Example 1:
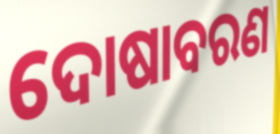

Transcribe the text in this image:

ଦୋଷାବରଣ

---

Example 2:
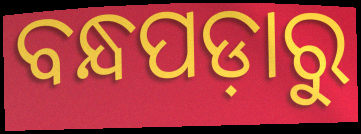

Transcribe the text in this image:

ବନ୍ଧପଡ଼ାରୁ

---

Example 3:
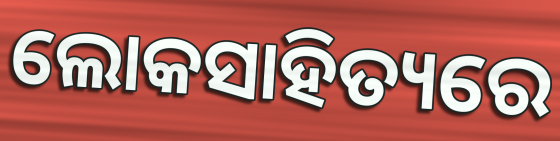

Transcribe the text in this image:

ଲୋକସାହିତ୍ୟରେ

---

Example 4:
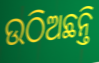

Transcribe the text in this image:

ଉଠିଅଛନ୍ତି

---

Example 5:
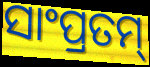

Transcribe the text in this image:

ସାଂପ୍ରତମ୍